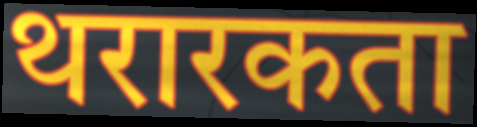
थरारकता